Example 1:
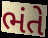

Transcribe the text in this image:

ભંતે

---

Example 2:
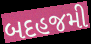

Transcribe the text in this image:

બદહજમી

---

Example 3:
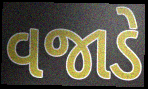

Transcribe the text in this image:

વજાડે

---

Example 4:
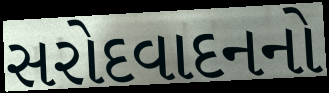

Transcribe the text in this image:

સરોદવાદનનો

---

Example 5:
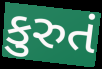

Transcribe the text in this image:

કુરુતં